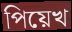
পিয়েখ